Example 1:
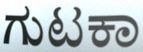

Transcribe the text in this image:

ಗುಟಕಾ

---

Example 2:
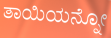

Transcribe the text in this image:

ತಾಯಿಯನ್ನೋ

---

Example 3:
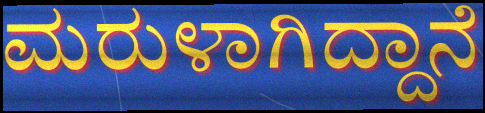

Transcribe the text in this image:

ಮರುಳಾಗಿದ್ದಾನೆ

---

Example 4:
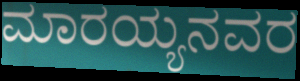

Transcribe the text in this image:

ಮಾರಯ್ಯನವರ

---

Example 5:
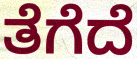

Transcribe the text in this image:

ತೆಗೆದೆ